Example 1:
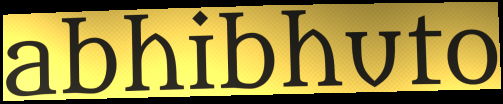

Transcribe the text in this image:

abhibhuto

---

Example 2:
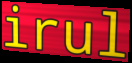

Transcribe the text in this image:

irul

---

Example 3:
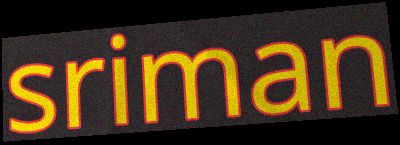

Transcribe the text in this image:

sriman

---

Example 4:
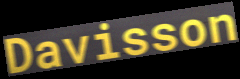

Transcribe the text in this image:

Davisson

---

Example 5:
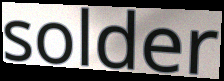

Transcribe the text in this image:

solder